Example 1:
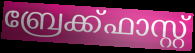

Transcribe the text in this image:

ബ്രേക്ക്ഫാസ്റ്റ്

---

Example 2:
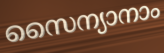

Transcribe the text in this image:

സൈന്യാനാം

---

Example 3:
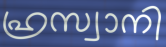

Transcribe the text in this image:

ഹ്രസ്വാനി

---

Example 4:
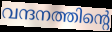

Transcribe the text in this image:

വന്ദനത്തിന്റെ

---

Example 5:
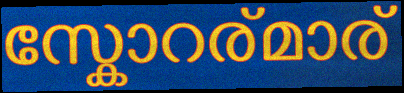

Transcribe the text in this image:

സ്കോറര്മാര്